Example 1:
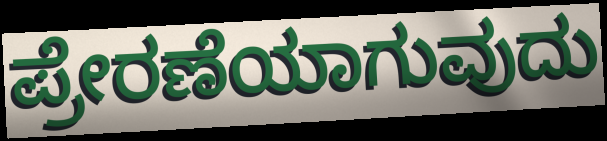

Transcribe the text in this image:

ಪ್ರೇರಣೆಯಾಗುವುದು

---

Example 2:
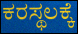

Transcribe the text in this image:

ಕರಸ್ಥಲಕ್ಕೆ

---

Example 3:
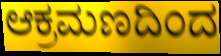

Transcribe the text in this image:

ಆಕ್ರಮಣದಿಂದ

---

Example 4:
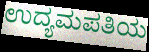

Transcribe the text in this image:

ಉದ್ಯಮಪತಿಯ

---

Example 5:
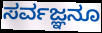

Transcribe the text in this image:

ಸರ್ವಜ್ಞನೂ